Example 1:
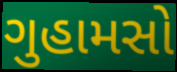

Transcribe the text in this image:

ગુહામસો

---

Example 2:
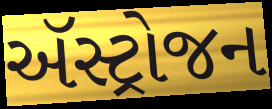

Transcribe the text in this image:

ઍસ્ટ્રોજન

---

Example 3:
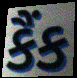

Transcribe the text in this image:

કૈંક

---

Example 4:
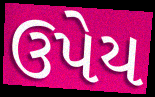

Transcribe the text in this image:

ઉપેય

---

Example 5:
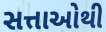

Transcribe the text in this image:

સત્તાઓથી